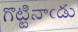
గొట్టినాఁడు